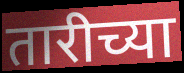
तारीच्या